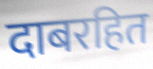
दाबरहित